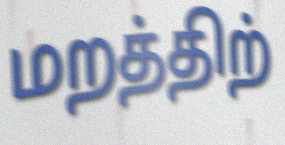
மறத்திற்